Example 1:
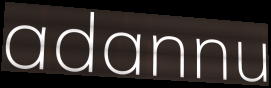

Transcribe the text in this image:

adannu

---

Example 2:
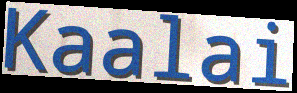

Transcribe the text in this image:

Kaalai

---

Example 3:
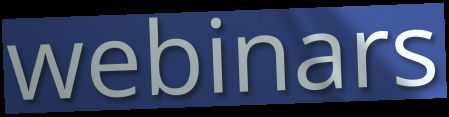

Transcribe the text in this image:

webinars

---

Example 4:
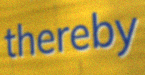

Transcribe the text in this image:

thereby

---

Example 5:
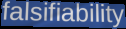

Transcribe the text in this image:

falsifiability